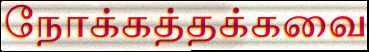
நோக்கத்தக்கவை